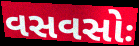
વસવસોઃ